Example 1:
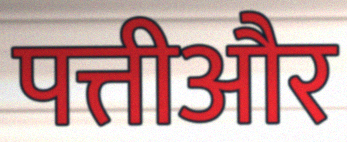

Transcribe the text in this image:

पत्तीऔर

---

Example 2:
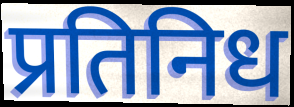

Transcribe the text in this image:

प्रतिनिध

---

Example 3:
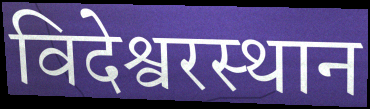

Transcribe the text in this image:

विदेश्वरस्थान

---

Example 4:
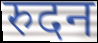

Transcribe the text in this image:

रुदन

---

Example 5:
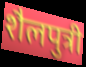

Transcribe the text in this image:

शैलपुत्री